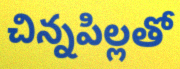
చిన్నపిల్లతో